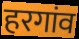
हरगांव